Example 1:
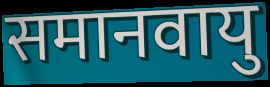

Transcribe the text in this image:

समानवायु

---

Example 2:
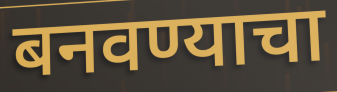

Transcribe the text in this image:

बनवण्याचा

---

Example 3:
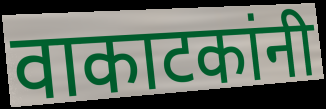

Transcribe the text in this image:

वाकाटकांनी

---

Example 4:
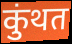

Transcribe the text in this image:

कुंथत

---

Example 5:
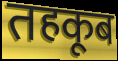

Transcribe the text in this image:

तहकूब